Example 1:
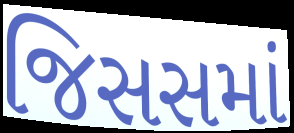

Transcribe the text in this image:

જિસસમાં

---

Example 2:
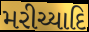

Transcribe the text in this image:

મરીચ્યાદિ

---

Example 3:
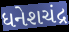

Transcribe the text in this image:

ધનેશચંદ્ર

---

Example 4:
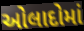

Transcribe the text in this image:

ઓલાદોમાં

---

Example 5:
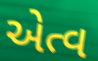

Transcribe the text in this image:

એત્વ